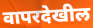
वापरदेखील